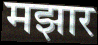
मझार